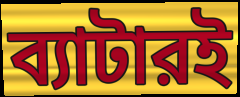
ব্যাটারই